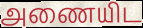
அணையிட